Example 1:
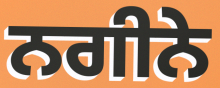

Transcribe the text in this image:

ਨਗੀਨੇ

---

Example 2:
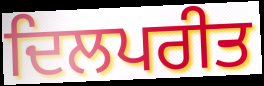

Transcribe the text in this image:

ਦਿਲਪਰੀਤ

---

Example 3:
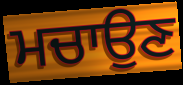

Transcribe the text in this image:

ਮਚਾਉਣ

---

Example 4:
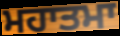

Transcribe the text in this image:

ਮਹਾਤਮਾ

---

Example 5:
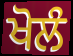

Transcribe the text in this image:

ਖੋਲੰ